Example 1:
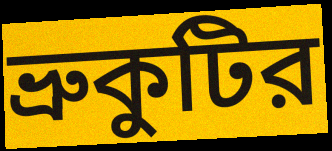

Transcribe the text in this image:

ভ্রুকুটির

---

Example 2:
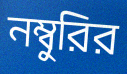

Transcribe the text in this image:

নম্বুরির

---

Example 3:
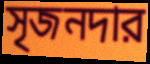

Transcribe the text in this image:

সৃজনদার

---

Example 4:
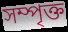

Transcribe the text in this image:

সম্পৃক্ত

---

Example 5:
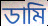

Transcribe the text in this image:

ডামি